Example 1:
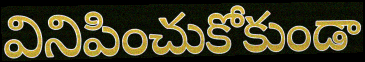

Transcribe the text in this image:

వినిపించుకోకుండా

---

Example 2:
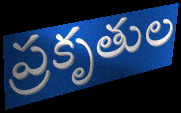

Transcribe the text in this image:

ప్రకృతుల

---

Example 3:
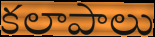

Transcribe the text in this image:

కలాపాలు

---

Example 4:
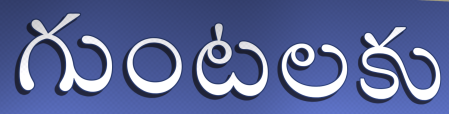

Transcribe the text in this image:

గుంటలకు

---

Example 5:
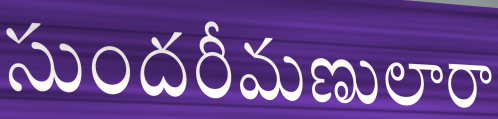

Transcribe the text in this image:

సుందరీమణులారా